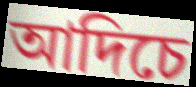
আদিচে